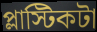
প্লাস্টিকটা